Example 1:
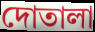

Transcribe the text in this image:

দোতালা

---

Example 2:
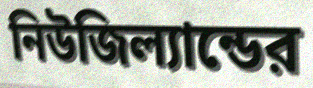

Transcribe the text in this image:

নিউজিল্যান্ডের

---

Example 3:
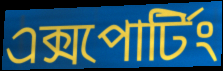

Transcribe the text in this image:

এক্সপোর্টিং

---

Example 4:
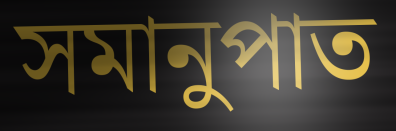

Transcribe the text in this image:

সমানুপাত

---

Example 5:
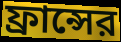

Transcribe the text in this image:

ফ্রান্সের